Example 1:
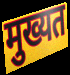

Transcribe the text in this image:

मुख्यत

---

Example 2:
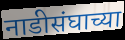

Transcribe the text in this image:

नाडीसंघाच्या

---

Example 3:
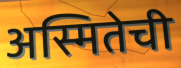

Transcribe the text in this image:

अस्मितेची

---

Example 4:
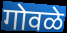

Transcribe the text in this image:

गोवळे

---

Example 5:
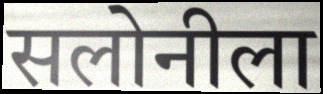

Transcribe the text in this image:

सलोनीला